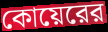
কোয়েরের